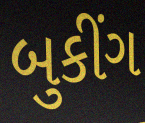
બુકીંગ